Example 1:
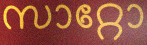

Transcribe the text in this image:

സാറ്റോ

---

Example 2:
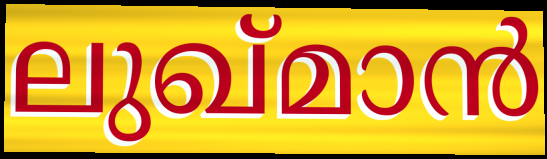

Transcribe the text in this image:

ലുഖ്മാൻ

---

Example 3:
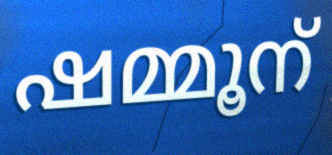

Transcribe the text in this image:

ഷമ്മൂന്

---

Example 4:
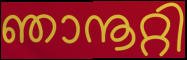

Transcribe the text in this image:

ഞാനൂറ്റി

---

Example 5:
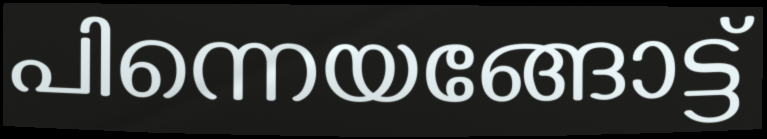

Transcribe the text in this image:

പിന്നെയങ്ങോട്ട്